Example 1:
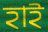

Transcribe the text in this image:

হাই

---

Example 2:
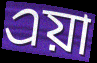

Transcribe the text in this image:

এয়া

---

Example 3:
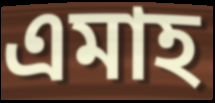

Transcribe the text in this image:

এমাহ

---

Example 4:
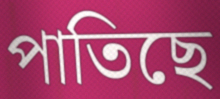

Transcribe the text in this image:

পাতিছে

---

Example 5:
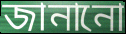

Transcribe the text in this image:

জানানো